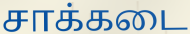
சாக்கடை